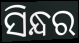
ସିନ୍ଧର